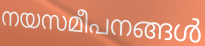
നയസമീപനങ്ങൾ